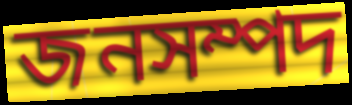
জনসম্পদ